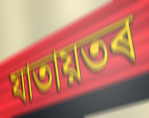
যাতায়তৰ